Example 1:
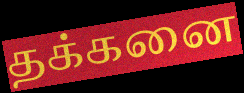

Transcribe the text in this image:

தக்கனை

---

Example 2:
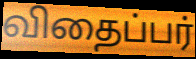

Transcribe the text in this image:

விதைப்பர்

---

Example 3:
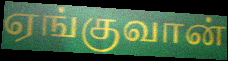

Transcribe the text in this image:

ஏங்குவான்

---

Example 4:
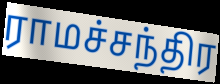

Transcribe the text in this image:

ராமச்சந்திர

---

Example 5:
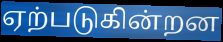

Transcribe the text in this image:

ஏற்படுகின்றன